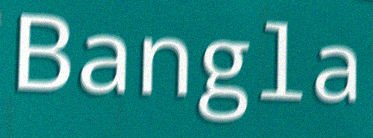
Bangla